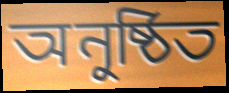
অনুষ্ঠিত